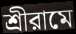
শ্রীরামে